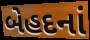
બેહદનાં